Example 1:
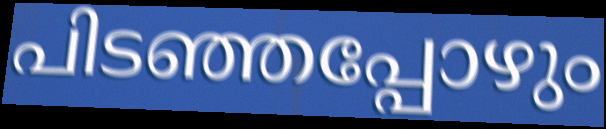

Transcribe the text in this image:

പിടഞ്ഞപ്പോഴും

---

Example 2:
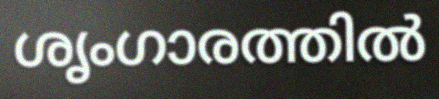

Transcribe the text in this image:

ശൃംഗാരത്തിൽ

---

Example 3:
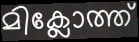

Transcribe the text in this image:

മിക്ലോത്ത്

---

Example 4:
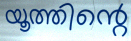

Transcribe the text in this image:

യൂത്തിന്റെ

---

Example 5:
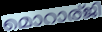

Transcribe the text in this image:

മൊറാര്ജി